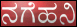
ನಗೆಹನಿ